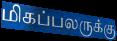
மிகப்பலருக்கு